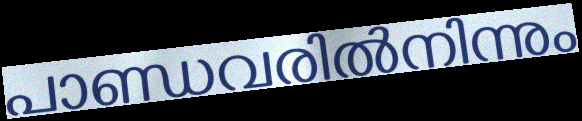
പാണ്ഡവരിൽനിന്നും